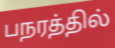
பநரத்தில்